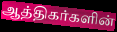
ஆத்திகர்களின்